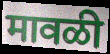
मावळी